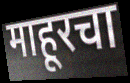
माहूरचा